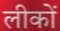
लीकों